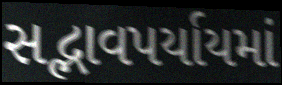
સદ્ભાવપર્યાયમાં